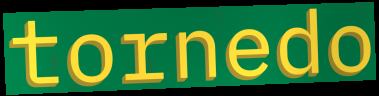
tornedo